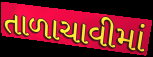
તાળાચાવીમાં